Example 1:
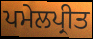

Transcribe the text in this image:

ਪਮੇਲਪ੍ਰੀਤ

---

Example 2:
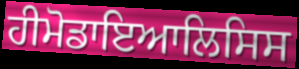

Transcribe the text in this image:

ਹੀਮੋਡਾਇਆਲਿਸਿਸ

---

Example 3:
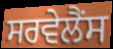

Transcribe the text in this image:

ਸਰਵੇਲੈਂਸ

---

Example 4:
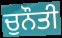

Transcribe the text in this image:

ਚੁਨੌਤੀ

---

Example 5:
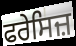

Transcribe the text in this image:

ਫਰੇਸਿਜ਼